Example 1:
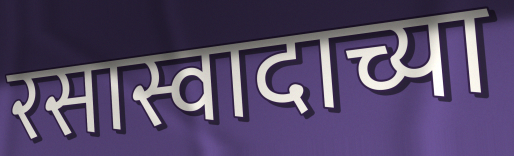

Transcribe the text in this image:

रसास्वादाच्या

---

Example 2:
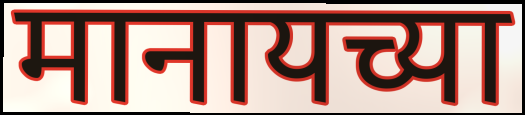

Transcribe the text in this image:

मानायच्या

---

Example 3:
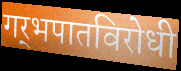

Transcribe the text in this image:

गर्भपातविरोधी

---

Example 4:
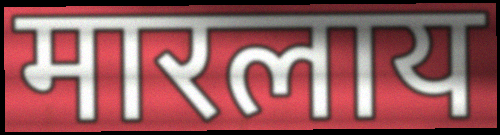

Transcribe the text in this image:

मारलाय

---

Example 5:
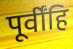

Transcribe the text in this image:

पूर्वींहि